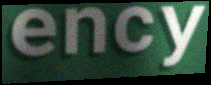
ency